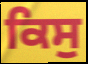
ਕਿਸੁ